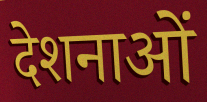
देशनाओं